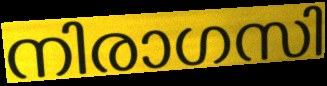
നിരാഗസി